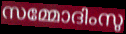
സമ്മോദിംസു